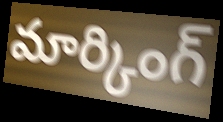
మార్కింగ్